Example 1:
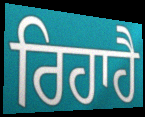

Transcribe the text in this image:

ਰਿਹਾਹੈ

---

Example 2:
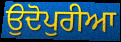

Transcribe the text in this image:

ਉਦੋਪੁਰੀਆ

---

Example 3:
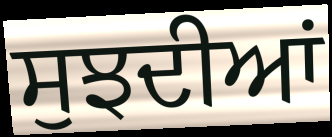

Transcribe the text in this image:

ਸੁਝਦੀਆਂ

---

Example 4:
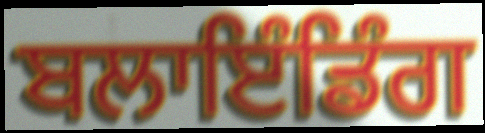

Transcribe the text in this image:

ਬਲਾਇੰਡਿੰਗ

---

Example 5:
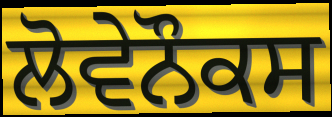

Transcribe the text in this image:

ਲੋਵੇਨੌਕਸ